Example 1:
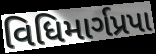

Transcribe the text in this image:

વિધિમાર્ગપ્રપા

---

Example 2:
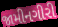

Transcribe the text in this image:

જામીનગીરી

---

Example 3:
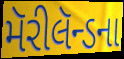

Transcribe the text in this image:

મૅરીલૅન્ડના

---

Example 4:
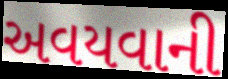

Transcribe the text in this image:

અવયવાની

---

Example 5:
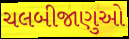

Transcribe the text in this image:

ચલબીજાણુઓ